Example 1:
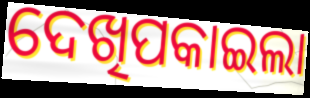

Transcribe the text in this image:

ଦେଖିପକାଇଲା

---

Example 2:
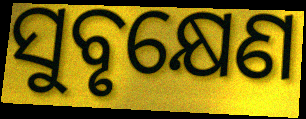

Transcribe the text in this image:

ସୁବୃକ୍ଷେଣ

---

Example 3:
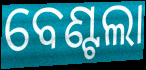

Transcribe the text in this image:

ବେଣ୍ଟଲା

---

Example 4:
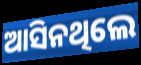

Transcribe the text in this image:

ଆସିନଥିଲେ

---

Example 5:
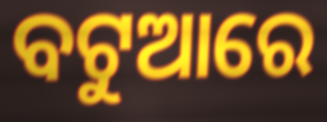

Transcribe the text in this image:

ବଟୁଆରେ